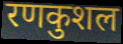
रणकुशल